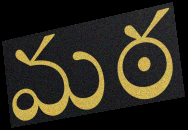
మఠ